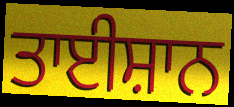
ਤਾਈਸ਼ਾਨ